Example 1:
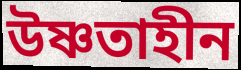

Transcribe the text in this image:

উষ্ণতাহীন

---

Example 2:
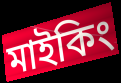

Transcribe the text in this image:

মাইকিং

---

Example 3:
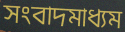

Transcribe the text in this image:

সংবাদমাধ্যম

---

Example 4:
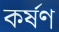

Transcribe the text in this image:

কর্ষণ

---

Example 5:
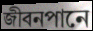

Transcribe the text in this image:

জীবনপানে